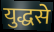
युद्धसे